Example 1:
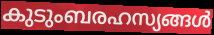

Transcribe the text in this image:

കുടുംബരഹസ്യങ്ങൾ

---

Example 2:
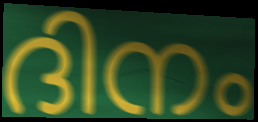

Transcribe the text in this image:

ദിനം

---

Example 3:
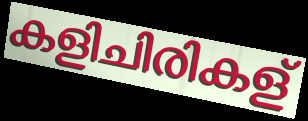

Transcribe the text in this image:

കളിചിരികള്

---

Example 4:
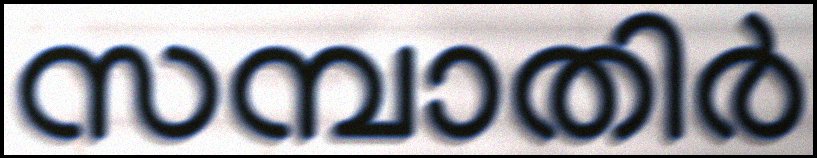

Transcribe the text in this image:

സമ്പാതിർ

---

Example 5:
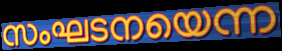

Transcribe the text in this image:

സംഘടനയെന്ന